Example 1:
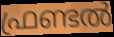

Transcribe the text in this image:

ഫ്രണ്ടൽ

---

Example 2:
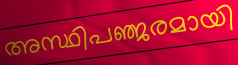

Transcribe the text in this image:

അസ്ഥിപഞ്ജരമായി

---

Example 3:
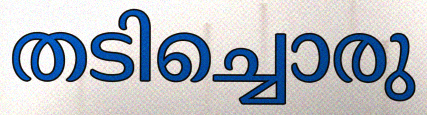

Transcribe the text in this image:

തടിച്ചൊരു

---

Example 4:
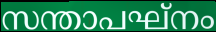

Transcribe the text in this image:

സന്താപഘ്നം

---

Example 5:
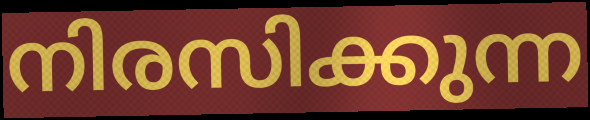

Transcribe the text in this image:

നിരസിക്കുന്ന